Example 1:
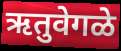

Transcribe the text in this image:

ऋतुवेगळे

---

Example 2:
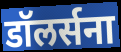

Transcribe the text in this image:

डॉलर्सना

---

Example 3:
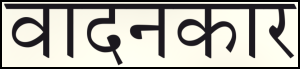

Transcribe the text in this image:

वादनकार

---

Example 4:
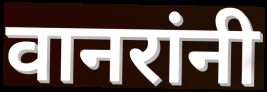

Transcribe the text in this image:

वानरांनी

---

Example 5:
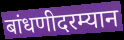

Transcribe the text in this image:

बांधणीदरम्यान